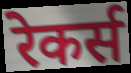
रेकर्स